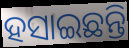
ହସାଇଛନ୍ତି